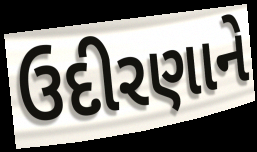
ઉદીરણાને